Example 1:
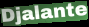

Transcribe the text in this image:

Djalante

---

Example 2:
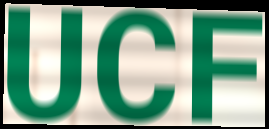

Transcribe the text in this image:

UCF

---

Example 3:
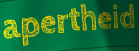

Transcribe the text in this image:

apertheid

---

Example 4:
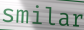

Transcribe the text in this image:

smilar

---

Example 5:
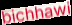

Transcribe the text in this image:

bichhawi